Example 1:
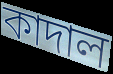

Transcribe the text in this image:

কাদাল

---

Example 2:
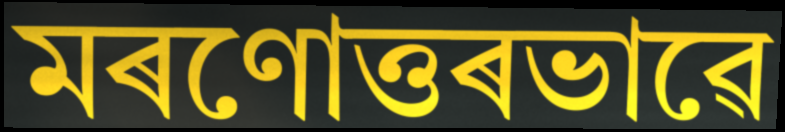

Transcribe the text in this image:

মৰণোত্তৰভাৱে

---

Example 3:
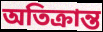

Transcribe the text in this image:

অতিক্ৰান্ত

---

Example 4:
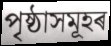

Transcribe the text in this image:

পৃষ্ঠাসমূহৰ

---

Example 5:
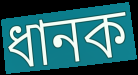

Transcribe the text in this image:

ধানক